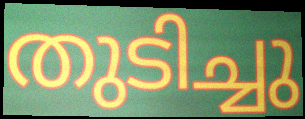
തുടിച്ചു